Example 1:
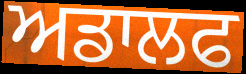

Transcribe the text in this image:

ਅਡਾਲਫ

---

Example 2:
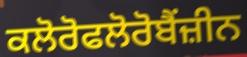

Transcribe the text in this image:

ਕਲੋਰੋਫਲੋਰੋਬੈਂਜ਼ੀਨ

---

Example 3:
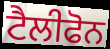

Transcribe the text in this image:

ਟੈਲੀਫੋਨ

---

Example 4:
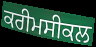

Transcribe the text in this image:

ਕਰੀਮਸੀਕਲ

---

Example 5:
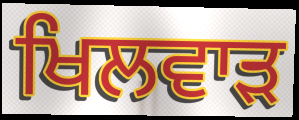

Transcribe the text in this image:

ਖਿਲਵਾੜ